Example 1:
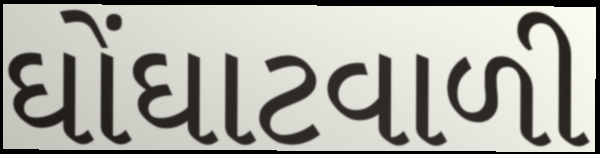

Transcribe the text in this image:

ઘોંઘાટવાળી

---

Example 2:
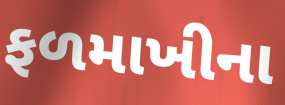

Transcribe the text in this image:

ફળમાખીના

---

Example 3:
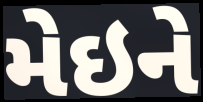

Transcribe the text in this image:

મેઇને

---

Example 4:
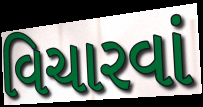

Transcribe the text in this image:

વિચારવાં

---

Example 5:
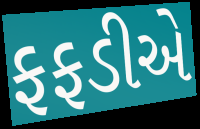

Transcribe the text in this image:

ફફડીએ